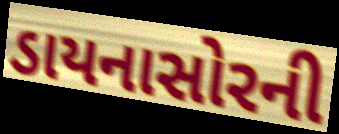
ડાયનાસોરની